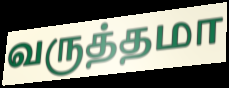
வருத்தமா